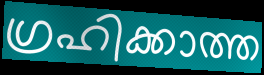
ഗ്രഹിക്കാത്ത